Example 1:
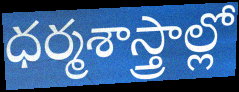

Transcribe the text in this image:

ధర్మశాస్త్రాల్లో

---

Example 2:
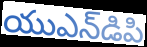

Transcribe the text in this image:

యుఎన్‌డిపి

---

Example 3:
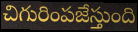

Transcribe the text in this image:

చిగురింపజేస్తుంది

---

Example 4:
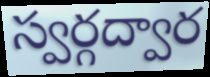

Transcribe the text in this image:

స్వర్గద్వార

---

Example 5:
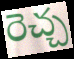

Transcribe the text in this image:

రెచ్చ